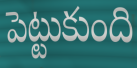
పెట్టుకుంది